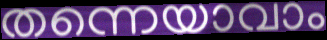
തന്നെയാവാം